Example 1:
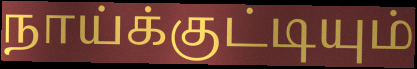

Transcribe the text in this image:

நாய்க்குட்டியும்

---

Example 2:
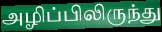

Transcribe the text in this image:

அழிப்பிலிருந்து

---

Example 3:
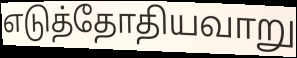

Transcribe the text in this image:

எடுத்தோதியவாறு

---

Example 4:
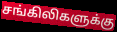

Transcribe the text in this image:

சங்கிலிகளுக்கு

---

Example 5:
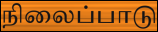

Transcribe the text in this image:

நிலைப்பாடு